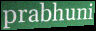
prabhuni